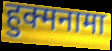
हुक्मनामा